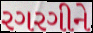
રગરગીને